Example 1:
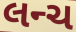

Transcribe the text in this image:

લન્ચ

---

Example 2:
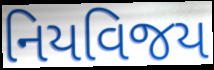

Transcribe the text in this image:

નિયવિજય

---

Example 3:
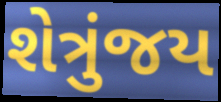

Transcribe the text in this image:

શેત્રુંજય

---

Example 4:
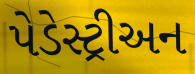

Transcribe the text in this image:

પેડેસ્ટ્રીઅન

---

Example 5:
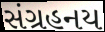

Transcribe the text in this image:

સંગ્રહનય